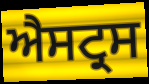
ਐਸਟ੍ਰਸ